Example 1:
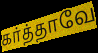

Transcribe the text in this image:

கர்த்தாவே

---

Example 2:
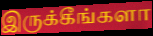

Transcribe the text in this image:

இருக்கீங்களா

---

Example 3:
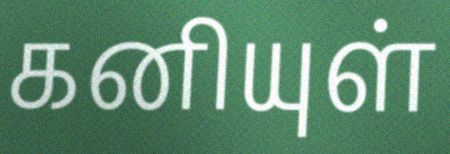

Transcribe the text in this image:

கனியுள்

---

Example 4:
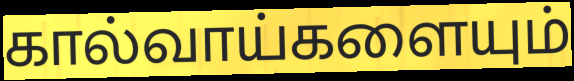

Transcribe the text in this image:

கால்வாய்களையும்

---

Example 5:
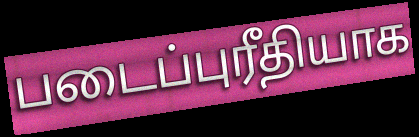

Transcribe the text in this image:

படைப்புரீதியாக